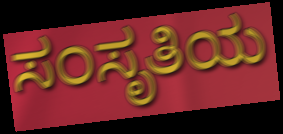
ಸಂಸೃತಿಯ